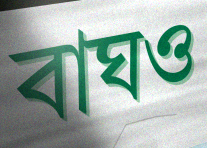
বাঘও